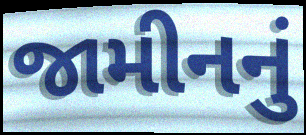
જામીનનું